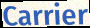
Carrier